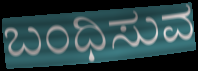
ಬಂಧಿಸುವ